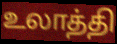
உலாத்தி